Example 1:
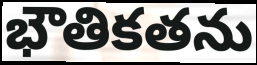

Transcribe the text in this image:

భౌతికతను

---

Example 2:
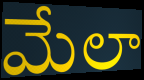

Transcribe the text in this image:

మేలా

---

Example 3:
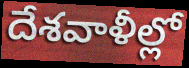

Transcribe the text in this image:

దేశవాళీల్లో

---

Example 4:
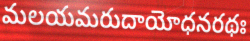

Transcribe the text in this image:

మలయమరుదాయోధనరథః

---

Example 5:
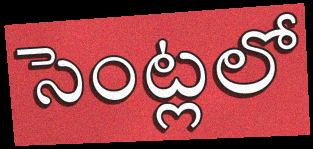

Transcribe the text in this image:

సెంట్లలో